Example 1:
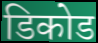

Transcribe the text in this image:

डिकोड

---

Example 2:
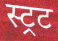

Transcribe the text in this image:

स्ट्रट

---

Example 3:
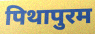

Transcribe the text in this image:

पिथापुरम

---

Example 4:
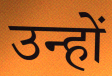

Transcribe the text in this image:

उन्हों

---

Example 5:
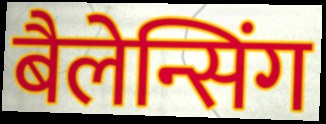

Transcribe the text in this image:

बैलेन्सिंग